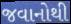
જવાનોથી